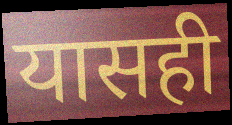
यासही